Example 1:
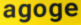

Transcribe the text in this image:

agoge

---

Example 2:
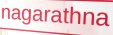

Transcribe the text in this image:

nagarathna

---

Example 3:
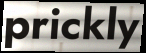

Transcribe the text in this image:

prickly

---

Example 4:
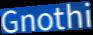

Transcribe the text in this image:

Gnothi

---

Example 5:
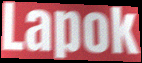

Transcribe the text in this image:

Lapok